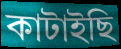
কাটাইছি